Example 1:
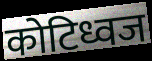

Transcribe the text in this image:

कोटिध्वज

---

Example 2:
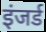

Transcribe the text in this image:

इंजर्ड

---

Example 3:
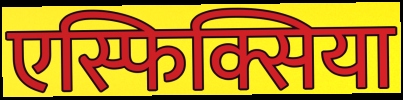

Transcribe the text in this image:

एस्फिक्सिया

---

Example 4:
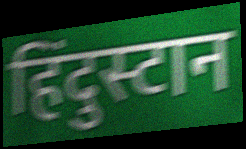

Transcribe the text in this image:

हिंदुस्टान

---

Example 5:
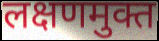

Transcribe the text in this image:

लक्षणमुक्त